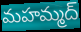
మహమ్మద్